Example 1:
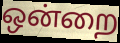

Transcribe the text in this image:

ஒன்றை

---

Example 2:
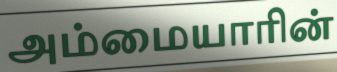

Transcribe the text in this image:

அம்மையாரின்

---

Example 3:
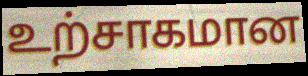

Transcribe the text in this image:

உற்சாகமான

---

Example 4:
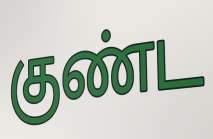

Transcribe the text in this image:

குண்ட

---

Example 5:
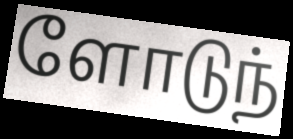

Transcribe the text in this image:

ளோடுந்